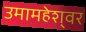
उमामहेश्वर